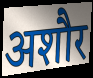
अशौर